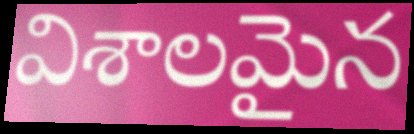
విశాలమైన